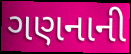
ગણનાની